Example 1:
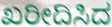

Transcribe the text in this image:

ಖರೀದಿಸಿದ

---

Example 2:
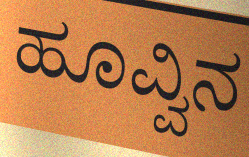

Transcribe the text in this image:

ಹೂವ್ವಿನ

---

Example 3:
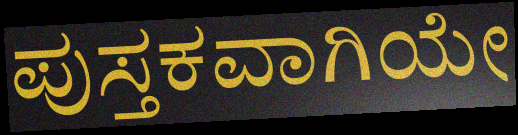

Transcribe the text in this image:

ಪುಸ್ತಕವಾಗಿಯೇ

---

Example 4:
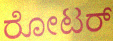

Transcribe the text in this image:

ರೋಟರ್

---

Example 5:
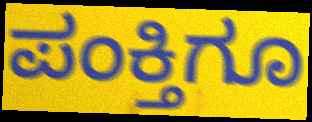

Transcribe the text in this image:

ಪಂಕ್ತಿಗೂ